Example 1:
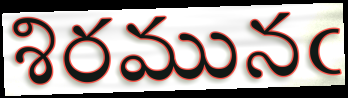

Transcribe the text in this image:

శిరమునఁ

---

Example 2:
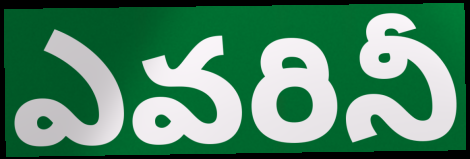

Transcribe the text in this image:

ఎవరినీ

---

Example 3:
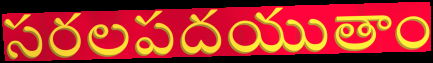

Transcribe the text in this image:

సరలపదయుతాం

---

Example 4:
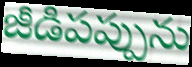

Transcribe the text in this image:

జీడిపప్పును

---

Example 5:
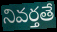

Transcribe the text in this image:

నివర్తతే